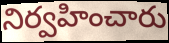
నిర్వహించారు